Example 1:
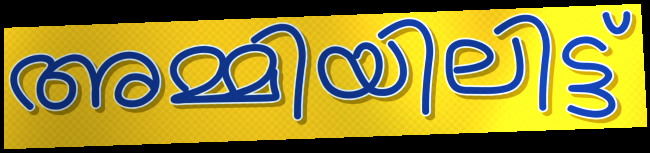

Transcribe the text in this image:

അമ്മിയിലിട്ട്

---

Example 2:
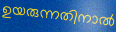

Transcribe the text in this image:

ഉയരുന്നതിനാൽ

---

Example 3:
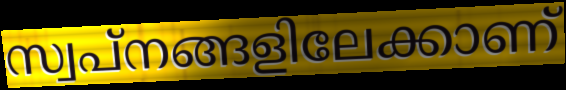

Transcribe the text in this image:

സ്വപ്നങ്ങളിലേക്കാണ്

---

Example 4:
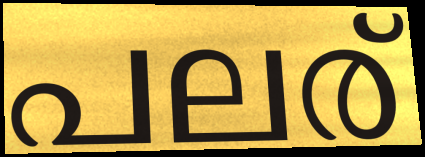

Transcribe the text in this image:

പലര്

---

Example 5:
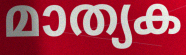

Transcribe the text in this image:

മാത്യക